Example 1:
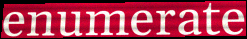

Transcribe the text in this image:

enumerate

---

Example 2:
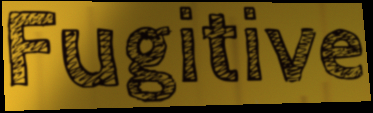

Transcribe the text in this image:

Fugitive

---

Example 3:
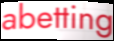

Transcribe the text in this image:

abetting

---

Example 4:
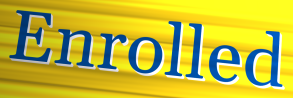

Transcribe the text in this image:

Enrolled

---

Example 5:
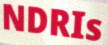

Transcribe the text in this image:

NDRIs